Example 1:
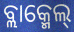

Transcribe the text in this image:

ବ୍ଲାକ୍ମେଲ୍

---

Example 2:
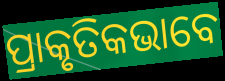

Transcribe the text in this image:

ପ୍ରାକୃତିକଭାବେ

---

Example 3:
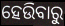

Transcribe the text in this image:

ହେଉିବାରୁ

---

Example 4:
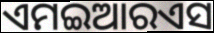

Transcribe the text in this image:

ଏମଇଆରଏସ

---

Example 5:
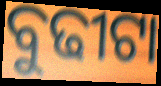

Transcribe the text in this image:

ବୁଢୀଟା